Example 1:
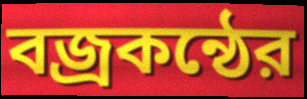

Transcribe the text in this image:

বজ্রকন্ঠের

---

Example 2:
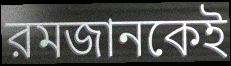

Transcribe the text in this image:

রমজানকেই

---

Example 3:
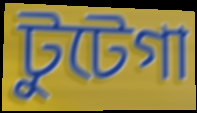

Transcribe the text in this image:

টুটেগা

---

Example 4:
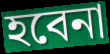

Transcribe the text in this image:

হবেনা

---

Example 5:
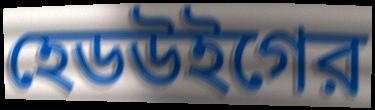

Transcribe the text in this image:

হেডউইগের